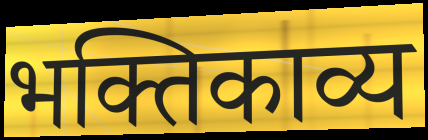
भक्तिकाव्य